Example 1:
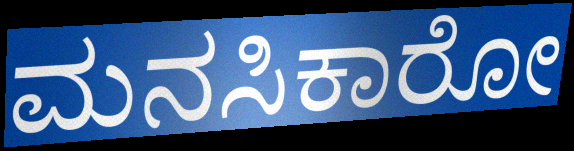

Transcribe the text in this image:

ಮನಸಿಕಾರೋ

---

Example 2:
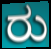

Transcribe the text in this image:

ರು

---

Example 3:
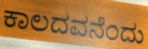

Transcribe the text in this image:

ಕಾಲದವನೆಂದು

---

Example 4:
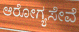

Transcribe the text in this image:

ಆರೋಗ್ಯಸೇವೆ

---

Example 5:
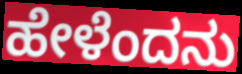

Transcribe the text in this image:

ಹೇಳೆಂದನು